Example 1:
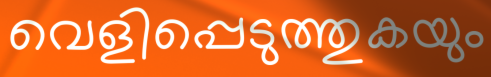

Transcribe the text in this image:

വെളിപ്പെടുത്തുകയും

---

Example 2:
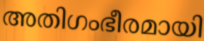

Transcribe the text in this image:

അതിഗംഭീരമായി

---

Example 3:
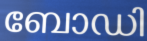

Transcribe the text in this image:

ബോഡി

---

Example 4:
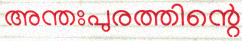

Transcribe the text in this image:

അന്തഃപുരത്തിന്റെ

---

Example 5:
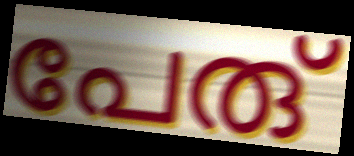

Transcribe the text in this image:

പേരു്